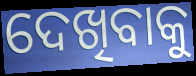
ଦେଖିବାକୁ